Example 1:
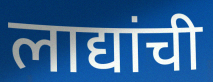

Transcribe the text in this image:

लाद्यांची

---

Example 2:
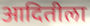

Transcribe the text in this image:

आदितीला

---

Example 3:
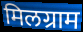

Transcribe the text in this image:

मिलग्राम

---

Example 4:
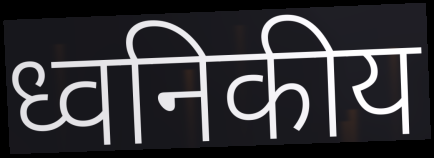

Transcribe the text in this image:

ध्वनिकीय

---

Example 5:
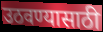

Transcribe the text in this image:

उठवण्यासाठी